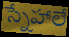
స్నేహాలే